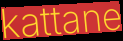
kattane